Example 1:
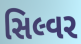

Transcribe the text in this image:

સિલ્વર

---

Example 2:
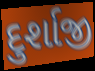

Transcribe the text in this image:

દુર્શાજી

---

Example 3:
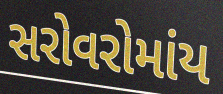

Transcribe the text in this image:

સરોવરોમાંય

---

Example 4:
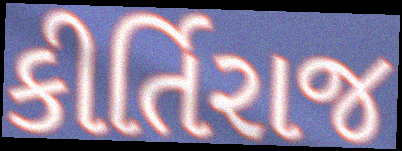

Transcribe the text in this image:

કીર્તિરાજ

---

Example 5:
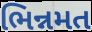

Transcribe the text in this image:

ભિન્નમત